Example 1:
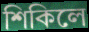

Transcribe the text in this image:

শিকিলে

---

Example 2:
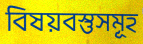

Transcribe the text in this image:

বিষয়বস্তুসমূহ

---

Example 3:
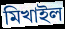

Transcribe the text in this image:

মিখাইল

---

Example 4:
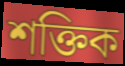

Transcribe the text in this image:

শক্তিক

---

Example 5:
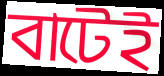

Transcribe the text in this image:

বাটেই